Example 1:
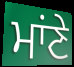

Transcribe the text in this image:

ਮਾਂਣੇ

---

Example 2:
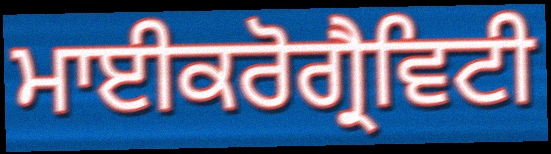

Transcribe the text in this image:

ਮਾਈਕਰੋਗ੍ਰੈਵਿਟੀ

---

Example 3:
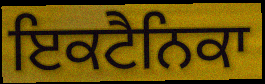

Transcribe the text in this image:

ਇਕਟੈਨਿਕਾ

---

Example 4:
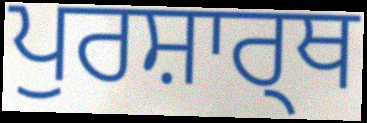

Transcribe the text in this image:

ਪੁਰਸ਼ਾਰ੍ਥ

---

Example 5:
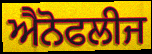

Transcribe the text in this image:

ਐਨੋਫਲੀਜ